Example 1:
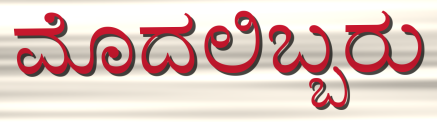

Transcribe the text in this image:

ಮೊದಲಿಬ್ಬರು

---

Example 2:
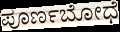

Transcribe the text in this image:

ಪೂರ್ಣಬೋಧೆ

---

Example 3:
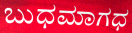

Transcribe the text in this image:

ಬುಧಮಾಗಧ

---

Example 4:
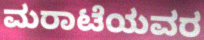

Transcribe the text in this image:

ಮರಾಟೆಯವರ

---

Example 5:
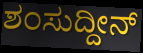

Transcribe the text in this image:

ಶಂಸುದ್ದೀನ್